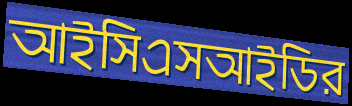
আইসিএসআইডির